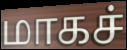
மாகச்